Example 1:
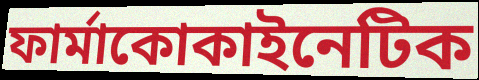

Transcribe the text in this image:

ফার্মাকোকাইনেটিক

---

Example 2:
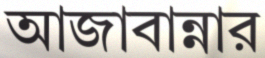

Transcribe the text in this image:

আজাবান্নার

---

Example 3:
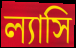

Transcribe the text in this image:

ল্যাসি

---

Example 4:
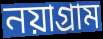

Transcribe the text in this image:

নয়াগ্রাম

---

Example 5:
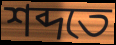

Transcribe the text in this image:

শব্দতে